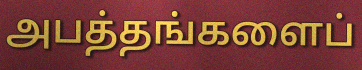
அபத்தங்களைப்